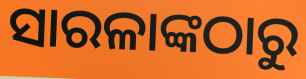
ସାରଳାଙ୍କଠାରୁ